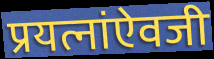
प्रयत्नांऐवजी